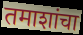
तमाशांचा